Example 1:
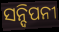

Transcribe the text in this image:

ସନ୍ଦିପନୀ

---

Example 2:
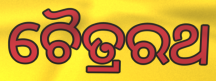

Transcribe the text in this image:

ଚୈତ୍ରରଥ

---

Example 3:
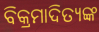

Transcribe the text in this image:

ବିକ୍ରମାଦିତ୍ୟଙ୍କ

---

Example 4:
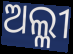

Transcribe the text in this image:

ଅଲ୍ଳୀ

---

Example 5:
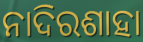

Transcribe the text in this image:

ନାଦିରଶାହା